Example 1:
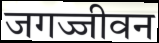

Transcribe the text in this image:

जगज्जीवन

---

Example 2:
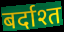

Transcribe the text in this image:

बर्दाश्त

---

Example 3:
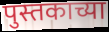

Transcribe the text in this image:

पुस्तकाच्या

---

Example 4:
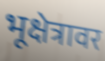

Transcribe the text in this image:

भूक्षेत्रावर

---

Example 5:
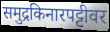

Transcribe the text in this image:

समुद्रकिनारपट्टीवर